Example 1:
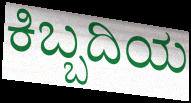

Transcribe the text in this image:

ಕಿಬ್ಬದಿಯ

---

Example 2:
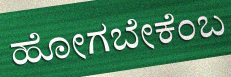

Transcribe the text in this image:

ಹೋಗಬೇಕೆಂಬ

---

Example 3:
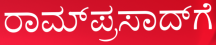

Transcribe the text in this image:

ರಾಮ್‌ಪ್ರಸಾದ್‌ಗೆ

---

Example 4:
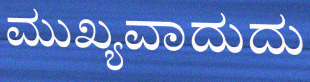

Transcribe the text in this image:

ಮುಖ್ಯವಾದುದು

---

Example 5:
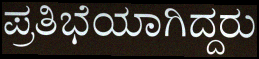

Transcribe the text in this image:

ಪ್ರತಿಭೆಯಾಗಿದ್ದರು